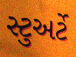
સ્ટુઅર્ટે